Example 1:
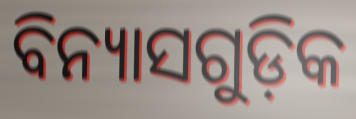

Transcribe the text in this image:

ବିନ୍ୟାସଗୁଡ଼ିକ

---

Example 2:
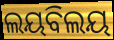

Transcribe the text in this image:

ଲୟବିଲୟ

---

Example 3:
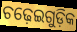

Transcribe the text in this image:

ଚଢ଼େଇଗୁଡ଼ିକ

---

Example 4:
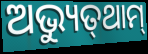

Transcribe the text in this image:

ଅଭ୍ୟୁତ୍‌ଥାମ୍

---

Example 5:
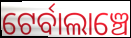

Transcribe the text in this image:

ଟେର୍ବାଲାଞ୍ଚେ